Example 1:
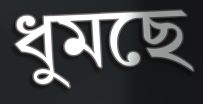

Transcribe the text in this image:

ধুমছে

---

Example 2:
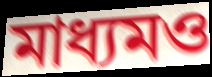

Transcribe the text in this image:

মাধ্যমও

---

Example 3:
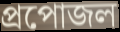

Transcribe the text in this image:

প্রপোজল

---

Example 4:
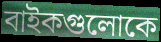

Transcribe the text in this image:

বাইকগুলোকে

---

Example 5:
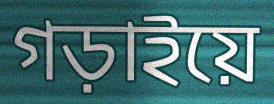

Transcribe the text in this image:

গড়াইয়ে